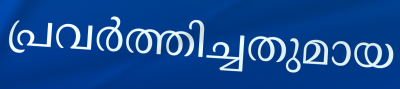
പ്രവർത്തിച്ചതുമായ